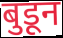
बुडून